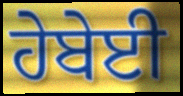
ਹੇਬੇਈ